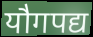
यौगपद्य